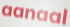
aanaal